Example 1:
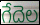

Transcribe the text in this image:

గేదెల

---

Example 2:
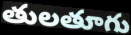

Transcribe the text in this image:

తులతూగు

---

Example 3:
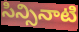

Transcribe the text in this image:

సిన్సినాటి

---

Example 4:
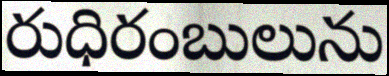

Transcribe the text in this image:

రుధిరంబులును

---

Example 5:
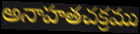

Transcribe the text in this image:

అనాహతచక్రము